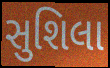
સુશિલા